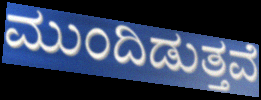
ಮುಂದಿಡುತ್ತವೆ